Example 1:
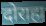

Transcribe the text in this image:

दोराहा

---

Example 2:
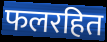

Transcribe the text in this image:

फलरहित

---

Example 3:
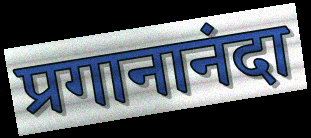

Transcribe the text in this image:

प्रगानानंदा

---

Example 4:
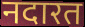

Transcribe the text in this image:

नदारत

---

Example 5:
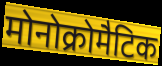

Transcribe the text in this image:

मोनोक्रोमैटिक